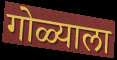
गोळ्याला